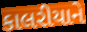
કાલરીયાને